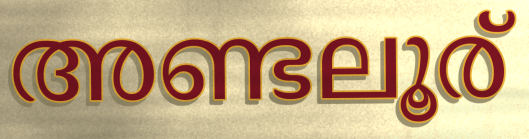
അണ്ടലൂര്